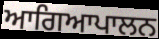
ਆਗਿਆਪਾਲਨ